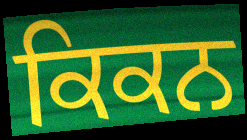
ਕਿਕਨ